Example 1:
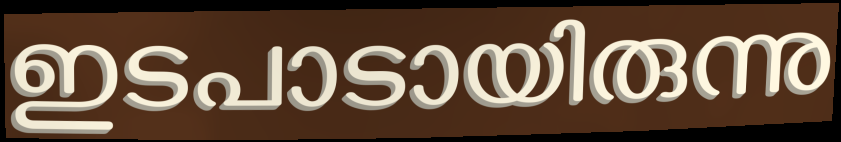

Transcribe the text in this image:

ഇടപാടായിരുന്നു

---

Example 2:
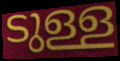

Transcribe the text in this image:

ടുള്ള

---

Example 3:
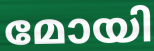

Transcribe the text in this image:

മോയി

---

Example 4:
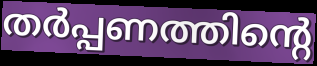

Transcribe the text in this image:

തർപ്പണത്തിന്റെ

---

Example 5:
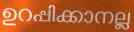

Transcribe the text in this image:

ഉറപ്പിക്കാനല്ല